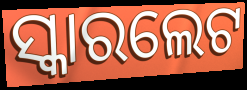
ସ୍କାରଲେଟ